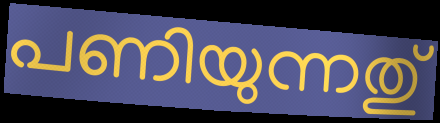
പണിയുന്നതു്